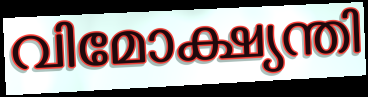
വിമോക്ഷ്യന്തി